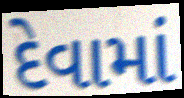
દેવામાં